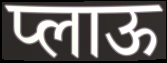
प्लाऊ